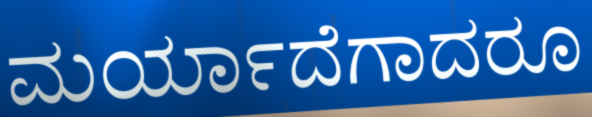
ಮರ್ಯಾದೆಗಾದರೂ